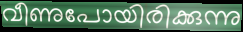
വീണുപോയിരിക്കുന്നു